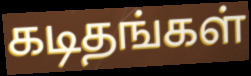
கடிதங்கள்